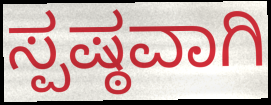
ಸ್ಪಷ್ಠವಾಗಿ